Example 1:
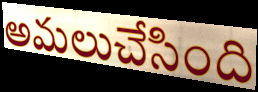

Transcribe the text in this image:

అమలుచేసింది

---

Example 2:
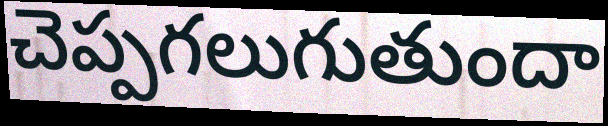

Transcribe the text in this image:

చెప్పగలుగుతుందా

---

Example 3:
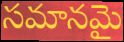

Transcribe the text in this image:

సమానమై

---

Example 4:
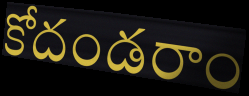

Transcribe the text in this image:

కోదండరాం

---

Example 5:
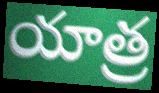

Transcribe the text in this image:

యాత్ర